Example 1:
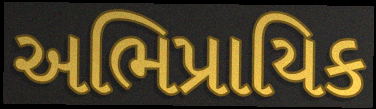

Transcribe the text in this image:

અભિપ્રાયિક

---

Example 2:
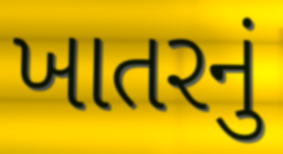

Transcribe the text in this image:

ખાતરનું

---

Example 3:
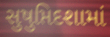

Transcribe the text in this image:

સુષુપ્તિદશામાં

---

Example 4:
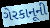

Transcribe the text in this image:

ગેરકાનૂની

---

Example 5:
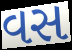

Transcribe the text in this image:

વસ